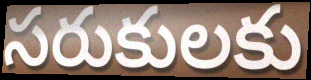
సరుకులకు